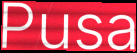
Pusa